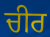
ਚੀਰ